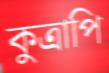
কুত্রাপি